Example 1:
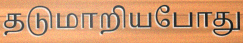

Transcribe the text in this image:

தடுமாறியபோது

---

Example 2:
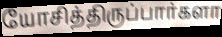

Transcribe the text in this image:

யோசித்திருப்பார்களா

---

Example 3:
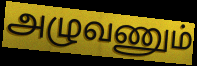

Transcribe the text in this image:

அழுவணும்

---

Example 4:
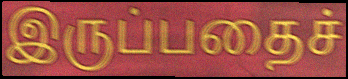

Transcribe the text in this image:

இருப்பதைச்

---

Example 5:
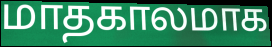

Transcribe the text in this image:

மாதகாலமாக